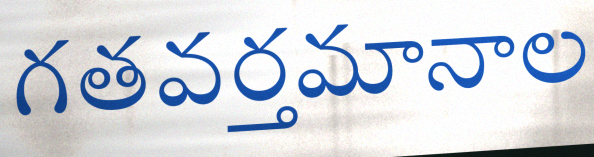
గతవర్తమానాల